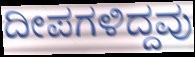
ದೀಪಗಳಿದ್ದವು